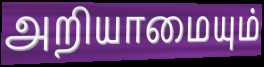
அறியாமையும்